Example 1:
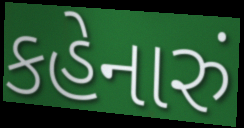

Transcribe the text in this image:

કહેનારું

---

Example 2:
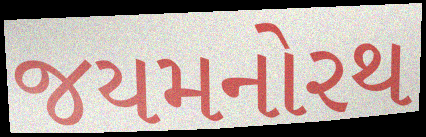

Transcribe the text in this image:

જયમનોરથ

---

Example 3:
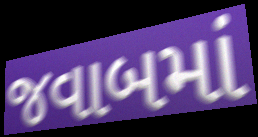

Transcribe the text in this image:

જવાબમાં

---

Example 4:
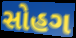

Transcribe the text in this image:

સોહગ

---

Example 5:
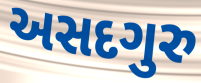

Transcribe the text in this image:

અસદગુરુ